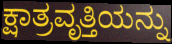
ಕ್ಷಾತ್ರವೃತ್ತಿಯನ್ನು